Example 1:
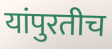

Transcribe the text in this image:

यांपुरतीच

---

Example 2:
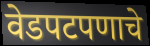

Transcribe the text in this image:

वेडपटपणाचे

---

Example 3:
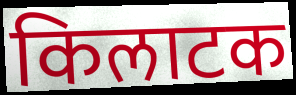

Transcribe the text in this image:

किलाटक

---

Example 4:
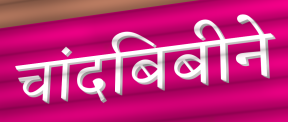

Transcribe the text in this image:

चांदबिबीने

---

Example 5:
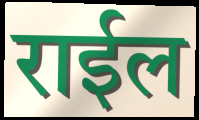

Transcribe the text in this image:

राईल